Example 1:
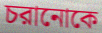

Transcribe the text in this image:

চরানোকে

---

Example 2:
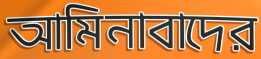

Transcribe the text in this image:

আমিনাবাদের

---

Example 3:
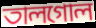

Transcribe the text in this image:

তালগোল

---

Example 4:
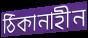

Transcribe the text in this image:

ঠিকানাহীন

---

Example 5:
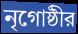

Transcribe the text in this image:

নৃগোষ্ঠীর